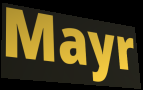
Mayr